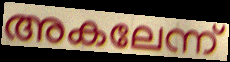
അകലേന്ന്